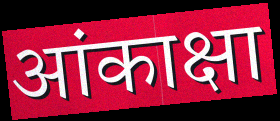
आंकाक्षा